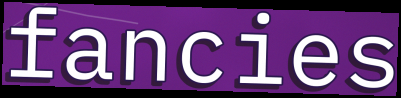
fancies